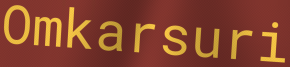
Omkarsuri